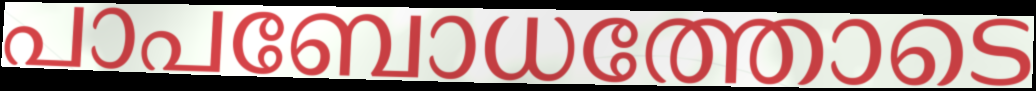
പാപബോധത്തോടെ